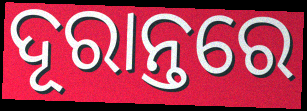
ଦୂରାନ୍ତରେ